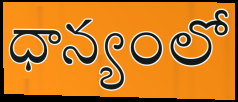
ధాన్యంలో